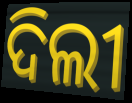
ଦିଲୀ